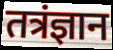
तत्रंज्ञान